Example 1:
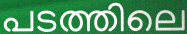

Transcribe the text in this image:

പടത്തിലെ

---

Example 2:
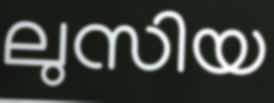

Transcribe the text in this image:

ലുസിയ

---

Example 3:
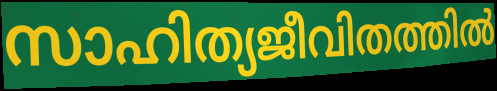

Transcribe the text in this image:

സാഹിത്യജീവിതത്തിൽ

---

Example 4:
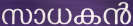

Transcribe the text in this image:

സാധകൻ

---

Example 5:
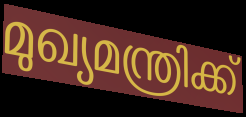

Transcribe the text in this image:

മുഖ്യമന്ത്രിക്ക്